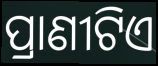
ପ୍ରାଣୀଟିଏ